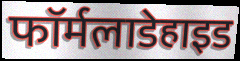
फॉर्मलाडेहाइड